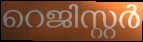
റെജിസ്റ്റർ